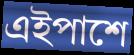
এইপাশে